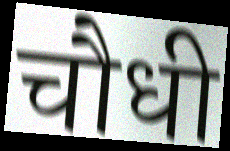
चौधी